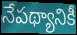
నేపథ్యానికీ